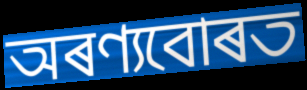
অৰণ্যবোৰত